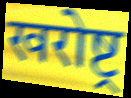
खरोष्ट्र